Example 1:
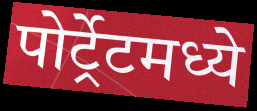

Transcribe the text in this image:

पोर्ट्रेटमध्ये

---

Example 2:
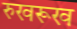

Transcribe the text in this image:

रुखरूख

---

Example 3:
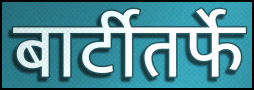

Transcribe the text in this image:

बार्टीतर्फे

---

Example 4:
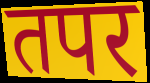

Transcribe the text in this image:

तपर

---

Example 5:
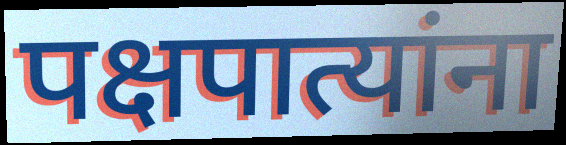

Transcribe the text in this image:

पक्षपात्यांना